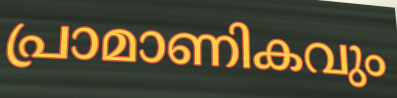
പ്രാമാണികവും